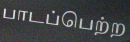
பாடப்பெற்ற